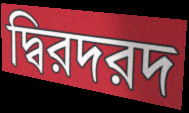
দ্বিরদরদ